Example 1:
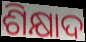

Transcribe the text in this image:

ଶିକ୍ଷାଦ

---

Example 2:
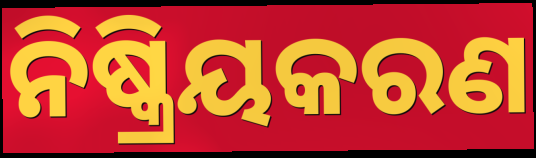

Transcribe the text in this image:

ନିଷ୍କ୍ରିୟକରଣ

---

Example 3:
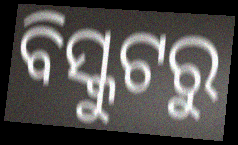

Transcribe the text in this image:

ବିସ୍କୁଟରୁ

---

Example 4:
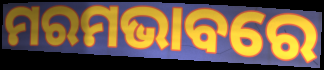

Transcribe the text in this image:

ମରମଭାବରେ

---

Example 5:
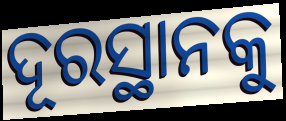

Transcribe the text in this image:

ଦୂରସ୍ଥାନକୁ